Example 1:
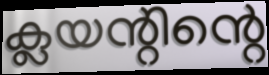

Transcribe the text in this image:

ക്ലയന്റിന്റെ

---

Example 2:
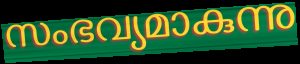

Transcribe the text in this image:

സംഭവ്യമാകുന്നു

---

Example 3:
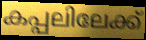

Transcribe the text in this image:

കപ്പലിലേക്ക്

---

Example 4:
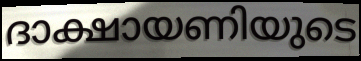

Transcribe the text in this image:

ദാക്ഷായണിയുടെ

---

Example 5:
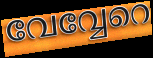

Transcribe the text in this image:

വേവ്വേറെ